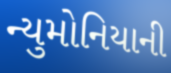
ન્યુમોનિયાની